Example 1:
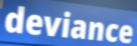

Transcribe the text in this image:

deviance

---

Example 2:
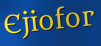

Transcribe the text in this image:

Ejiofor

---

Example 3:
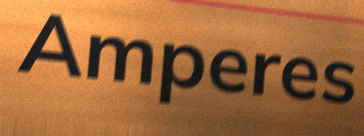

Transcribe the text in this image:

Amperes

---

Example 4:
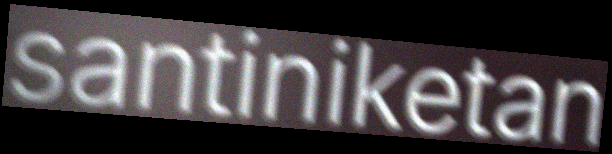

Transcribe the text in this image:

santiniketan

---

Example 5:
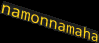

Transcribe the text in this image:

namonnamaha